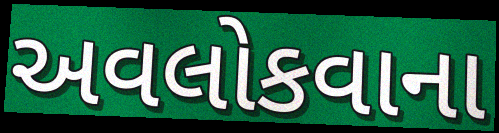
અવલોકવાના